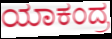
ಯಾಕಂದ್ರ